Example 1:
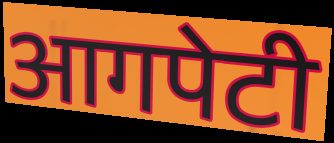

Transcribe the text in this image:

आगपेटी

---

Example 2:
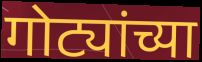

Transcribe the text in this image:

गोट्यांच्या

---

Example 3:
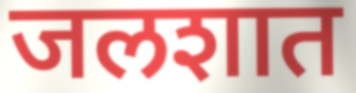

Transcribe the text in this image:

जलशात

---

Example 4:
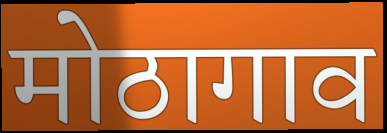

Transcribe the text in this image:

मोठागाव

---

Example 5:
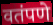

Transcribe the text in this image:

वतंपणे